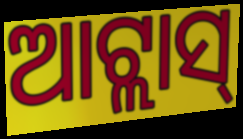
ଆଟ୍ଲାସ୍